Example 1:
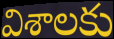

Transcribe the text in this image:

విశాలకు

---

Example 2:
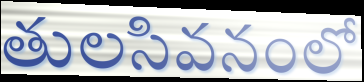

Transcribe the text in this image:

తులసివనంలో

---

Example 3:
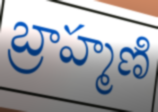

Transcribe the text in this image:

బ్రాహ్మణి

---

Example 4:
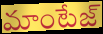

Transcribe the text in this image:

మాంటేజ్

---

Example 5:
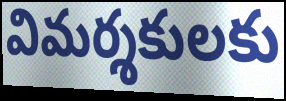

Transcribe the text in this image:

విమర్శకులకు